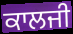
ਕਾਲਜੀ